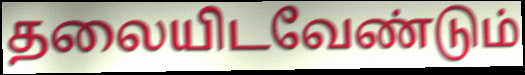
தலையிடவேண்டும்